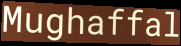
Mughaffal